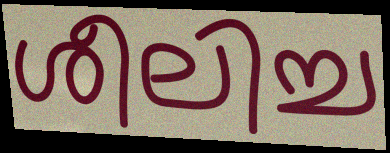
ശീലിച്ച